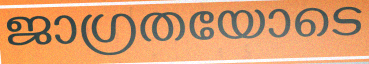
ജാഗ്രതയോടെ